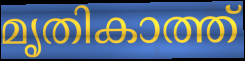
മൃതികാത്ത്